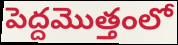
పెద్దమొత్తంలో